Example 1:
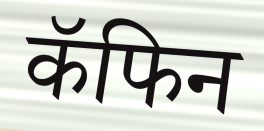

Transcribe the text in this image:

कॅफिन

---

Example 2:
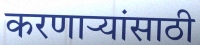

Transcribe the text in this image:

करणाऱ्यांसाठी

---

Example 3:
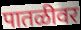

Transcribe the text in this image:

पातळीवर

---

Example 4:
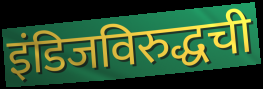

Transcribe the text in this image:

इंडिजविरुद्धची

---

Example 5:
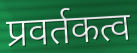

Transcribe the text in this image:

प्रवर्तकत्व